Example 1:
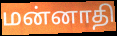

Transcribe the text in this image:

மன்னாதி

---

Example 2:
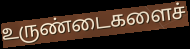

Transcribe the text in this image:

உருண்டைகளைச்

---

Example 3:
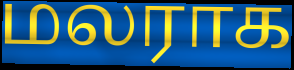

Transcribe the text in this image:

மலராக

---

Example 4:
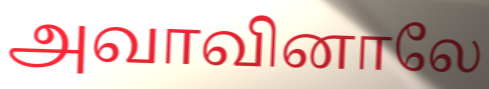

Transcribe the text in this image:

அவாவினாலே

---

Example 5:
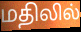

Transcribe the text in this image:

மதிலில்